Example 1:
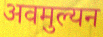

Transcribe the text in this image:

अवमुल्यन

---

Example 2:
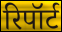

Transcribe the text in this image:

रिपॉर्ट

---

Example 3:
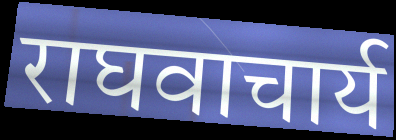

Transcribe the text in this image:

राघवाचार्य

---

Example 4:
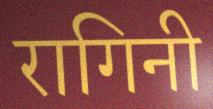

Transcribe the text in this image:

रागिनी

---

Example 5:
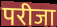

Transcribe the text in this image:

परीजा